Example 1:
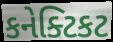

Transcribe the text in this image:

કનેક્ટિકટ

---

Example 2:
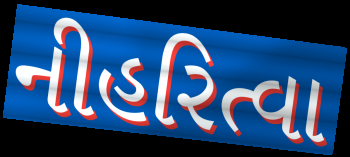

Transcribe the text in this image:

નીહરિત્વા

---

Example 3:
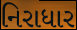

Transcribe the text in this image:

નિરાધાર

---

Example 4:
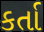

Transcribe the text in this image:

કર્તા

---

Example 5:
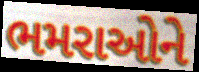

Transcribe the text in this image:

ભમરાઓને